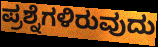
ಪ್ರಶ್ನೆಗಳಿರುವುದು